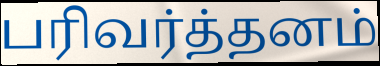
பரிவர்த்தனம்